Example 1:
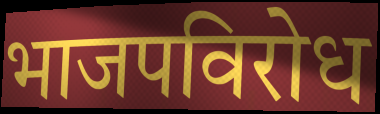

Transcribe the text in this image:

भाजपविरोध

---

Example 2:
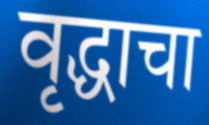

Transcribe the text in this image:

वृद्धाचा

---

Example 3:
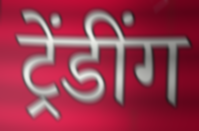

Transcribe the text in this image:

ट्रेंडींग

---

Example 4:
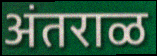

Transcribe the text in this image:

अंतराळ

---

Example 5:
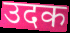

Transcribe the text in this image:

उदक